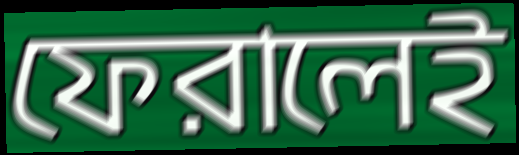
ফেরালেই